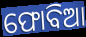
ଫୋବିଆ